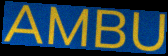
AMBU